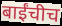
बाईंचीच